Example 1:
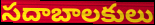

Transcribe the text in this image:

సదాబాలకులు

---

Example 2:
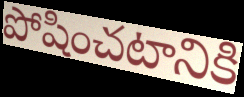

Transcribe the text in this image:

పోషించటానికి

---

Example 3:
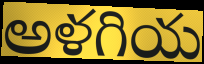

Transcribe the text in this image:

అళగియ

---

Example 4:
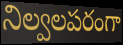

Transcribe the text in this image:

నిల్వలపరంగా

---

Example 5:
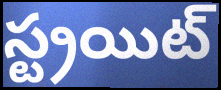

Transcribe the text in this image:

స్ట్రయిట్